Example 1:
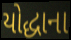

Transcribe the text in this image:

યોદ્ધાના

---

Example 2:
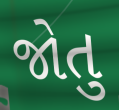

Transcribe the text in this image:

જોતુ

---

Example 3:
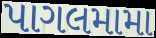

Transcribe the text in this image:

પાગલમામા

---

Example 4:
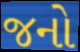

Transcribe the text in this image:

જનો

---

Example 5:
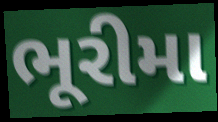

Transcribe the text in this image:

ભૂરીમા